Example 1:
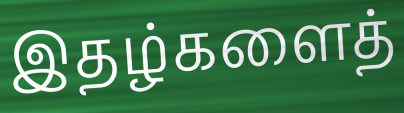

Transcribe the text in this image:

இதழ்களைத்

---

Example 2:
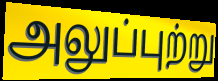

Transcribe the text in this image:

அலுப்புற்று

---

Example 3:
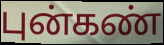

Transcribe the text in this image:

புன்கண்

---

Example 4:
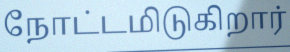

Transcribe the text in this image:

நோட்டமிடுகிறார்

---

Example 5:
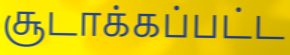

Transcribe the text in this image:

சூடாக்கப்பட்ட